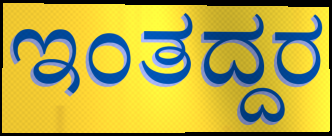
ಇಂತದ್ದರ